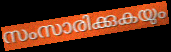
സംസാരിക്കുകയും